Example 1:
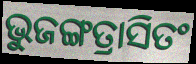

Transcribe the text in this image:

ଭୁଜଙ୍ଗତ୍ରାସିତଂ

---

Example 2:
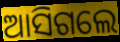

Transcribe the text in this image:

ଆସିଗଲେ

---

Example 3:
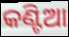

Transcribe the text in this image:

କଣ୍ଟିଆ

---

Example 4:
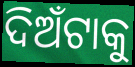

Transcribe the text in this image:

ଦିଅଁଟାକୁ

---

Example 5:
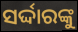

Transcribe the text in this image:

ସର୍ଦ୍ଦାରଙ୍କୁ